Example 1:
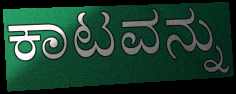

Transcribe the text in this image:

ಕಾಟವನ್ನು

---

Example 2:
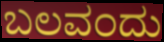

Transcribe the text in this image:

ಬಲವಂದು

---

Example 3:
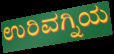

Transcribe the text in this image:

ಉರಿವಗ್ನಿಯ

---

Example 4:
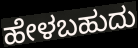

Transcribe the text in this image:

ಹೇಳಬಹುದು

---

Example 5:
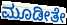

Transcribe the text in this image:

ಮೂಡೀತೇ